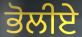
ਭੋਲੀਏ